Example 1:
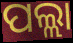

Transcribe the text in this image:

ପଲ୍ଲା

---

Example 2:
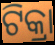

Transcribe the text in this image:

ଟିକ୍ରା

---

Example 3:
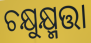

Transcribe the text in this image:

ଚକ୍ଷୁକ୍ଷ୍ମତ୍ତା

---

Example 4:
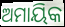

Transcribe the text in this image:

ଅମାୟିକ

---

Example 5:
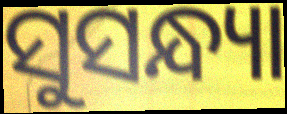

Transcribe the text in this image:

ସୁସନ୍ଧ୍ୟା